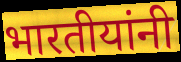
भारतीयांनी